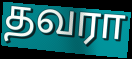
தவரா